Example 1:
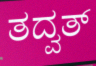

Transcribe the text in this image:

ತದ್ವತ್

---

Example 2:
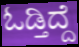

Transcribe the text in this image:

ಓಡ್ತಿದ್ದೆ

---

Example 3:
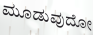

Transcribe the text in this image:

ಮೂಡುವುದೋ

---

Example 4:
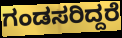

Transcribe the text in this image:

ಗಂಡಸರಿದ್ದರೆ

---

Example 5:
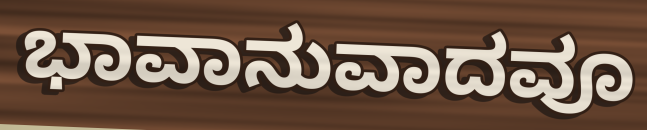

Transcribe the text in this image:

ಭಾವಾನುವಾದವೂ